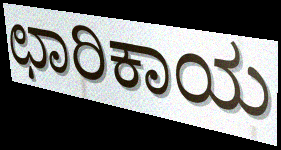
ಛಾರಿಕಾಯ